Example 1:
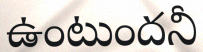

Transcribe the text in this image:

ఉంటుందనీ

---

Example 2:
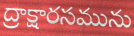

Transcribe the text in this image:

ద్రాక్షారసమును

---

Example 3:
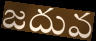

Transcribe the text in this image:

జదువ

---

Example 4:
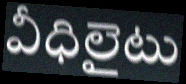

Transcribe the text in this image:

వీధిలైటు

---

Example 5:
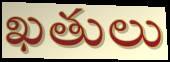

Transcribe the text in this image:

ఖతులు